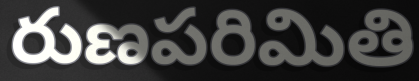
రుణపరిమితి